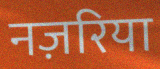
नज़रिया